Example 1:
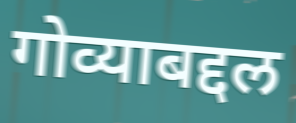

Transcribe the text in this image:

गोव्याबद्दल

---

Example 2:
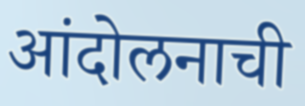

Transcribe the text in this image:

आंदोलनाची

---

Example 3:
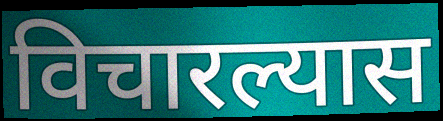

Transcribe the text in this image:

विचारल्यास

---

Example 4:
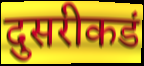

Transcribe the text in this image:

दुसरीकडं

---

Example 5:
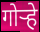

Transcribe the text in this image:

गोऱ्हे